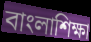
বাংলাশিক্ষা